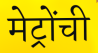
मेट्रोंची